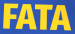
FATA